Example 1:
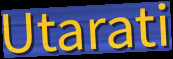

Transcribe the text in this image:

Utarati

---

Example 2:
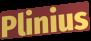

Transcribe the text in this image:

Plinius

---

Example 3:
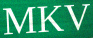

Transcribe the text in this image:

MKV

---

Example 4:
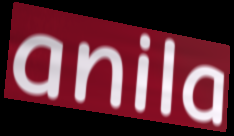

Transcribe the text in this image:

anila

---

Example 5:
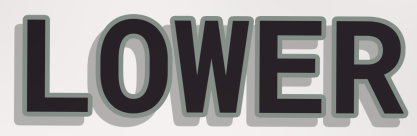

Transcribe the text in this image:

LOWER